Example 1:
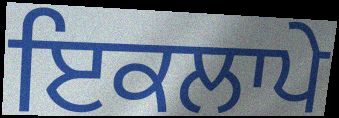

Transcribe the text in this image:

ਇਕਲਾਪੇ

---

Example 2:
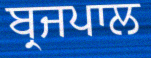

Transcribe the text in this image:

ਬ੍ਰਜਪਾਲ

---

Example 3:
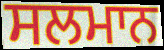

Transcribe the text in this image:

ਸਲਮਾਨ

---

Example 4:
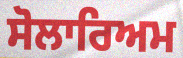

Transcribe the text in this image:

ਸੋਲਾਰਿਅਮ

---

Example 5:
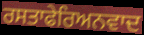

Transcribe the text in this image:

ਰਸਤਾਫੇਰਿਅਨਵਾਦ